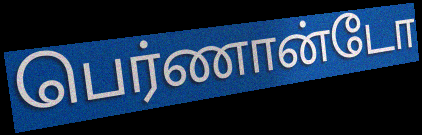
பெர்ணான்டோ